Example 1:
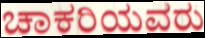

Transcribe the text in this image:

ಚಾಕರಿಯವರು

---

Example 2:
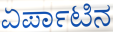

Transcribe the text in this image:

ಏರ್ಪಾಟಿನ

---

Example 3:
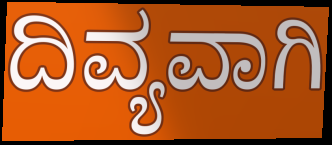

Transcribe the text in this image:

ದಿವ್ಯವಾಗಿ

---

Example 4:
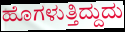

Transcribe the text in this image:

ಹೊಗಳುತ್ತಿದ್ದುದು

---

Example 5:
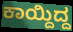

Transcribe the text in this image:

ಕಾಯ್ದಿದ್ದ